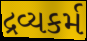
દ્રવ્યકર્મ